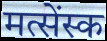
मत्सेंस्क